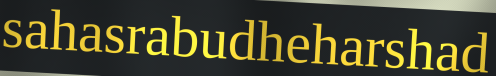
sahasrabudheharshad